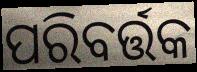
ପରିବର୍ତ୍ତକ